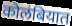
कोलंबियात